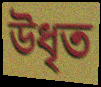
উধৃত